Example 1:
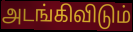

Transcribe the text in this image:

அடங்கிவிடும்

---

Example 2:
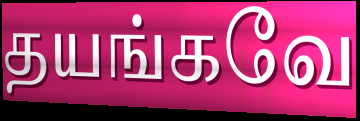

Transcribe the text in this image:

தயங்கவே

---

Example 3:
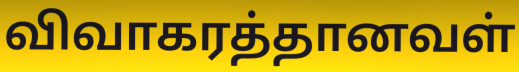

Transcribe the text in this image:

விவாகரத்தானவள்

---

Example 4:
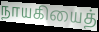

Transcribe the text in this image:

நாயகியைத்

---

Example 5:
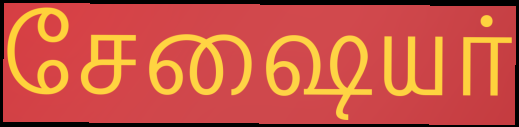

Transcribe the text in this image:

சேஷையர்